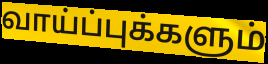
வாய்ப்புக்களும்